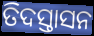
ତିଦସ୍ତାସନ